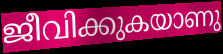
ജീവിക്കുകയാണു